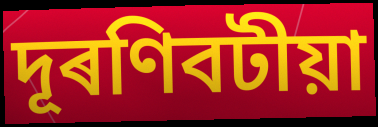
দূৰণিবটীয়া